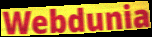
Webdunia